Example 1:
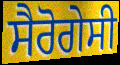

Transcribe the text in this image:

ਸੈਰੋਗੇਸੀ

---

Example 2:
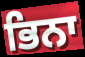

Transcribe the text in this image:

ਭਿਨਾ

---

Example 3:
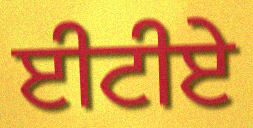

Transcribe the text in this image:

ਈਟੀਏ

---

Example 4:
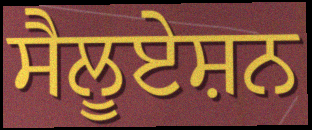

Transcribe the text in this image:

ਸੈਲੂਏਸ਼ਨ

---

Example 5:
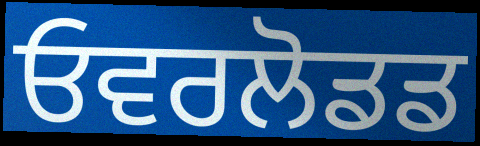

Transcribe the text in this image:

ਓਵਰਲੋਡਡ